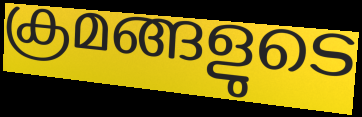
ക്രമങ്ങളുടെ